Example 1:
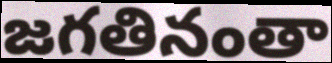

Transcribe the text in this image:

జగతినంతా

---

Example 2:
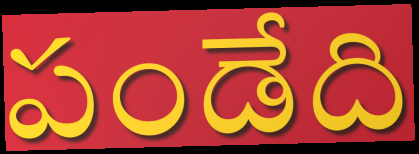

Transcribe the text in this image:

పండేది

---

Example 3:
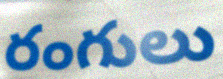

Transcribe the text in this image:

రంగులు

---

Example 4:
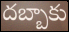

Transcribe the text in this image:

దబ్బాకు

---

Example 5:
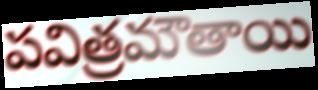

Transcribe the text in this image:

పవిత్రమౌతాయి